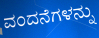
ವಂದನೆಗಳನ್ನು